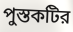
পুস্তকটির